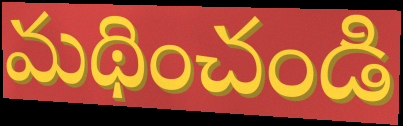
మథించండి